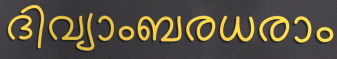
ദിവ്യാംബരധരാം